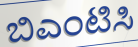
ಬಿಎಂಟಿಸಿ